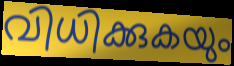
വിധിക്കുകയും